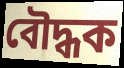
বৌদ্ধক